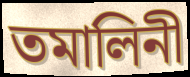
তমালিনী